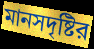
মানসদৃষ্টির